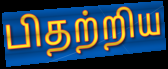
பிதற்றிய